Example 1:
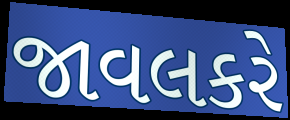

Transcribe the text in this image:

જાવલકરે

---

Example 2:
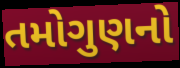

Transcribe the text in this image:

તમોગુણનો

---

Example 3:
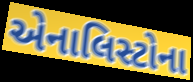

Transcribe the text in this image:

એનાલિસ્ટોના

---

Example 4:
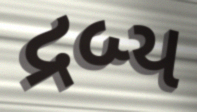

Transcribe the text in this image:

દ્રબ્ય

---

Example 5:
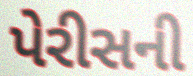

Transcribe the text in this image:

પેરીસની